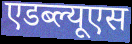
एडब्ल्यूएस